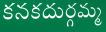
కనకదుర్గమ్మ